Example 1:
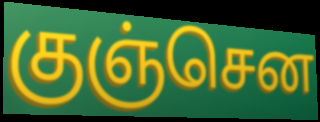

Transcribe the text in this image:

குஞ்சென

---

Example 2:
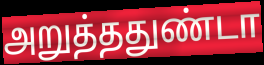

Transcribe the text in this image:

அறுத்ததுண்டா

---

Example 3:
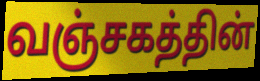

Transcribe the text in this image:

வஞ்சகத்தின்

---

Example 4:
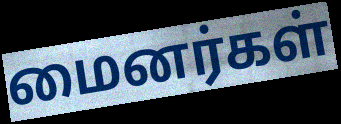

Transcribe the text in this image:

மைனர்கள்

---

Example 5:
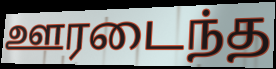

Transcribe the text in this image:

ஊரடைந்த